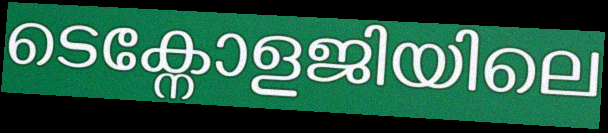
ടെക്നോളജിയിലെ